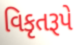
વિકૃતરૂપે